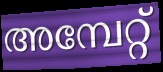
അമ്പേറ്റ്